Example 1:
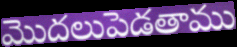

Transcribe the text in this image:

మొదలుపెడతాము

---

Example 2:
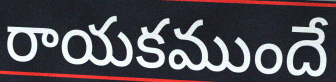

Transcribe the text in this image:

రాయకముందే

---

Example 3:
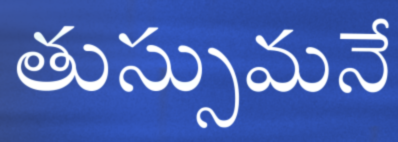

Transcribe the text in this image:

తుస్సుమనే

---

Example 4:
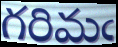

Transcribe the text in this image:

గరిమఁ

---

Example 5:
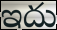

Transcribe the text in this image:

ఇదు